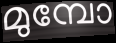
മുമ്പോ